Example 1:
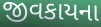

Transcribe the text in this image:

જીવકાયના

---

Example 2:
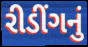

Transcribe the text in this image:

રીડીંગનું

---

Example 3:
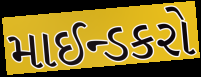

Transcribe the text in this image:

માઈન્ડકરો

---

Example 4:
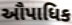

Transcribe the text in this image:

ઔપાધિક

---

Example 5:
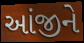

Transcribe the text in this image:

આંજીને